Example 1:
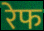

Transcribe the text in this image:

रेफ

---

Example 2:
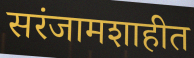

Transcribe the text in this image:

सरंजामशाहीत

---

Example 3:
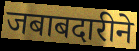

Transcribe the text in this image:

जबाबदारीने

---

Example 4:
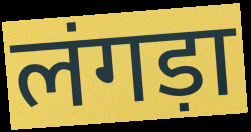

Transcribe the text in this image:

लंगड़ा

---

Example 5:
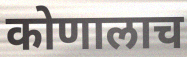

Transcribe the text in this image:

कोणालाच